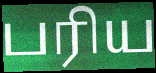
பரிய